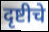
दृष्टीचे